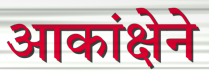
आकांक्षेने